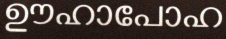
ഊഹാപോഹ